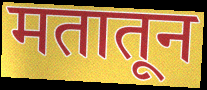
मतातून